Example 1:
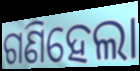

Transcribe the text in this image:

ଗଣିହେଲା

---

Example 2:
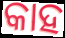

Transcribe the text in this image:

କାହ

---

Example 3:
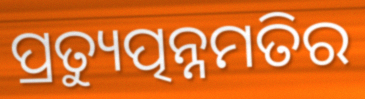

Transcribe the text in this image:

ପ୍ରତ୍ୟୁତ୍ପନ୍ନମତିର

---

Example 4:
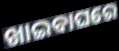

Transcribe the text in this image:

ଖାଇବାଘରେ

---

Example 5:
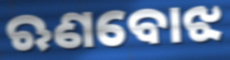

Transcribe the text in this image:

ଋଣବୋଝ